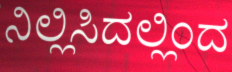
ನಿಲ್ಲಿಸಿದಲ್ಲಿಂದ